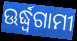
ଊର୍ଦ୍ଧ୍ଵଗାମୀ